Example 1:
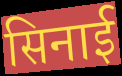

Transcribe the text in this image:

सिनाई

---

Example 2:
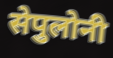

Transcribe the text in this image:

सेपुलोनी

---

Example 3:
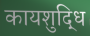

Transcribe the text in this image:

कायशुद्धि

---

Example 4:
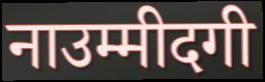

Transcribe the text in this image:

नाउम्मीदगी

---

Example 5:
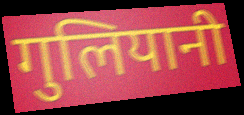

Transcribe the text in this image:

गुलियानी